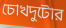
চোখদুটোর